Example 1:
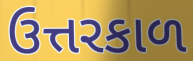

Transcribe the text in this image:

ઉત્તરકાળ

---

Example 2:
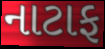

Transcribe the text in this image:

નાટાફ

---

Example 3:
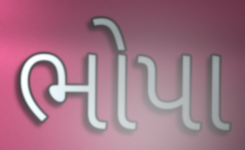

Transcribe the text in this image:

ભોપા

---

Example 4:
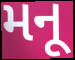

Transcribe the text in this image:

મનૂ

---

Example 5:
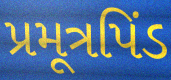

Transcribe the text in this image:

પ્રમૂત્રપિંડ